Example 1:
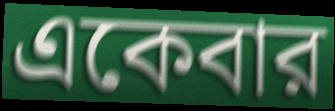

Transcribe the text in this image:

একেবার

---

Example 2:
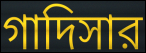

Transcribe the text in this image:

গাদিসার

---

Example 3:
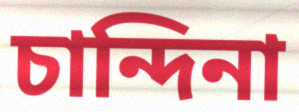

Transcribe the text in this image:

চান্দিনা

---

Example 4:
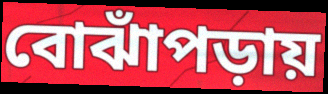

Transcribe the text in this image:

বোঝাঁপড়ায়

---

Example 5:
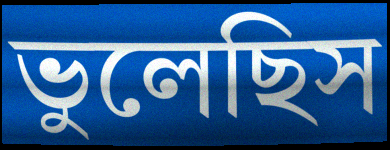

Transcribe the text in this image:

ভুলেছিস